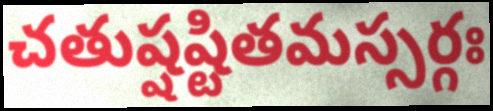
చతుష్షష్టితమస్సర్గః